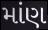
માંણ